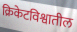
क्रिकेटविश्वातील